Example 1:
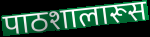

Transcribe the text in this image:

पाठशालारूस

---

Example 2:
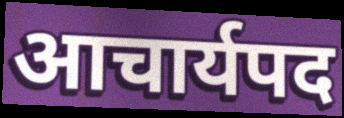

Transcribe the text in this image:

आचार्यपद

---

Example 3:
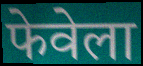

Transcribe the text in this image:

फेवेला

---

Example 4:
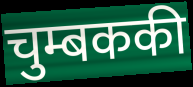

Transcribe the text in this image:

चुम्बककी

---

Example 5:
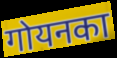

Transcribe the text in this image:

गोयनका